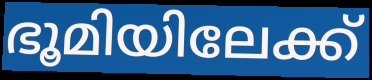
ഭൂമിയിലേക്ക്